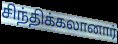
சிந்திக்கலானார்